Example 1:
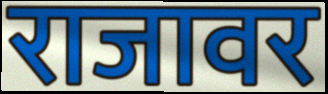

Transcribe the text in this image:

राजावर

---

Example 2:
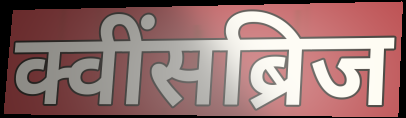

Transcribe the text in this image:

क्वींसब्रिज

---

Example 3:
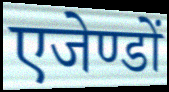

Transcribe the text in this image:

एजेण्डों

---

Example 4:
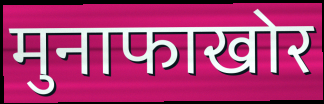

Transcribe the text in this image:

मुनाफाखोर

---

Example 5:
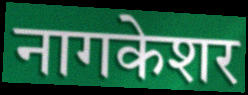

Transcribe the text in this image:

नागकेशर